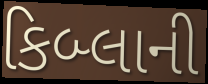
કિબ્લાની